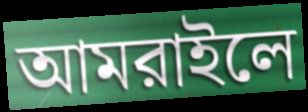
আমরাইলে